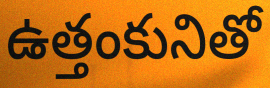
ఉత్తంకునితో